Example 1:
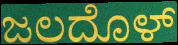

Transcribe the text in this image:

ಜಲದೊಳ್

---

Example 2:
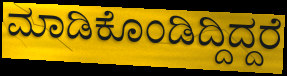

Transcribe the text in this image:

ಮಾಡಿಕೊಂಡಿದ್ದಿದ್ದರೆ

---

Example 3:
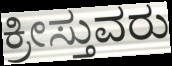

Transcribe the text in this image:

ಕ್ರೀಸ್ತುವರು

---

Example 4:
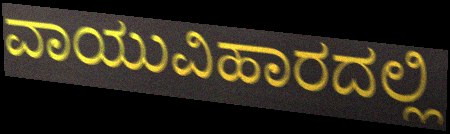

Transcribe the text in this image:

ವಾಯುವಿಹಾರದಲ್ಲಿ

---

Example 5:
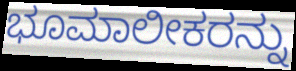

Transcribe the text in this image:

ಭೂಮಾಲೀಕರನ್ನು